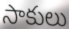
సాకులు